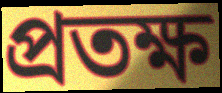
প্রতক্ষ